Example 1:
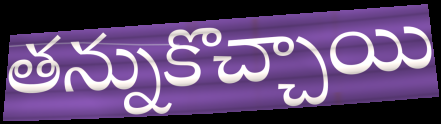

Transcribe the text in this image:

తన్నుకొచ్చాయి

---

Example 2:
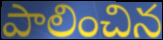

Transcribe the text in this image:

పాలించిన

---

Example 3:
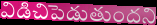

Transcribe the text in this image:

విడిచిపెడుతుందని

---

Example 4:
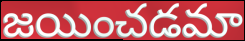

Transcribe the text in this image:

జయించడమా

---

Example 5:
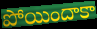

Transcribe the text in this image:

పోయిందాకా